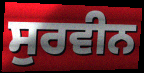
ਸੁਰਵੀਨ